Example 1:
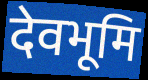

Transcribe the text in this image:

देवभूमि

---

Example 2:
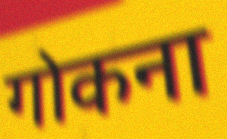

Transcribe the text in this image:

गोकना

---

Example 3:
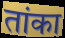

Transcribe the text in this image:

तांका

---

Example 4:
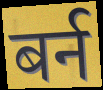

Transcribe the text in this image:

बर्न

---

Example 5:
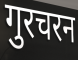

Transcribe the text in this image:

गुरचरन